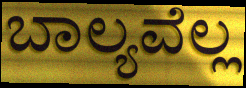
ಬಾಲ್ಯವೆಲ್ಲ